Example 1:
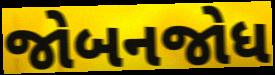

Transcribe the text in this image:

જોબનજોધ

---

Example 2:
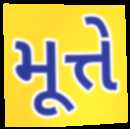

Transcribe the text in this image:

મૂત્તે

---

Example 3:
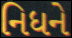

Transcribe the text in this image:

નિધને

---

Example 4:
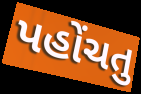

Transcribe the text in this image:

પહોંચતુ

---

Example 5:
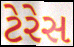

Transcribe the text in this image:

ટેરેસ